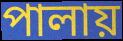
পালায়